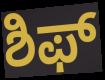
ಶಿಫ್